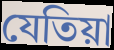
যেতিয়া